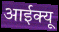
आईक्‍यू